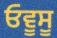
ਓਵੂਸੂ